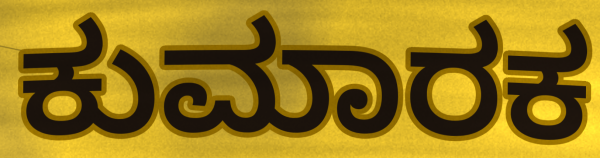
ಕುಮಾರಕ